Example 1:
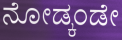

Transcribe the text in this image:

ನೋಡ್ಕಂಡೇ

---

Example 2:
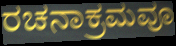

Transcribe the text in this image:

ರಚನಾಕ್ರಮವೂ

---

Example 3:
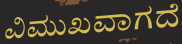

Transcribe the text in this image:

ವಿಮುಖವಾಗದೆ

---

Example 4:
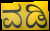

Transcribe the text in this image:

ವಡಿ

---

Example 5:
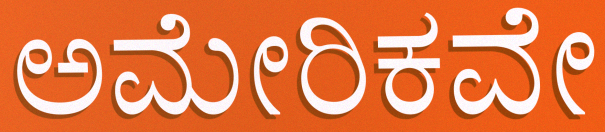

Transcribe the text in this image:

ಅಮೇರಿಕವೇ